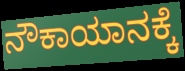
ನೌಕಾಯಾನಕ್ಕೆ